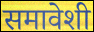
समावेशी